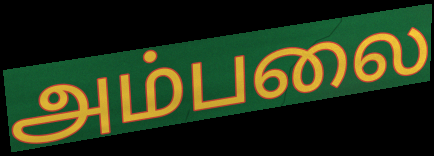
அம்பலை